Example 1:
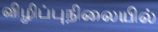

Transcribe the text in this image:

விழிப்புநிலையில்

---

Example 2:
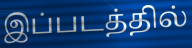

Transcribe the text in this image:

இப்படத்தில்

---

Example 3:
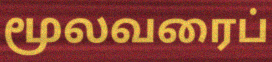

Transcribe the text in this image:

மூலவரைப்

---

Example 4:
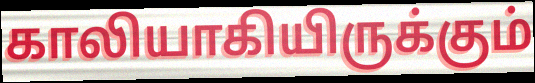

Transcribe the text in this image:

காலியாகியிருக்கும்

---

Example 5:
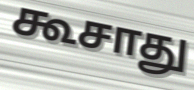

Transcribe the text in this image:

கூசாது